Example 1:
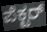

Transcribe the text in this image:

ಪೆಕ್ಟರ್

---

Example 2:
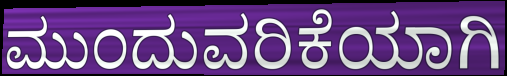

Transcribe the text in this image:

ಮುಂದುವರಿಕೆಯಾಗಿ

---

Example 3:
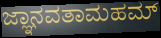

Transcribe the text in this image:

ಜ್ಞಾನವತಾಮಹಮ್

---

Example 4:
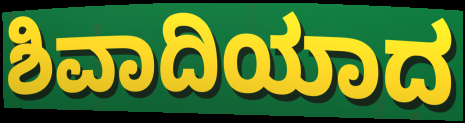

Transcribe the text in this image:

ಶಿವಾದಿಯಾದ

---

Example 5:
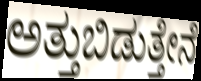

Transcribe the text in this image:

ಅತ್ತುಬಿಡುತ್ತೇನೆ